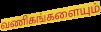
வணிகங்களையும்